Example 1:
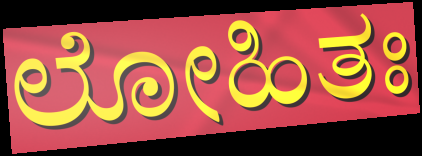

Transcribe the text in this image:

ಲೋಹಿತಃ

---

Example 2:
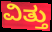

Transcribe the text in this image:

ವಿತ್ತು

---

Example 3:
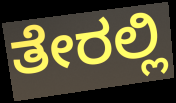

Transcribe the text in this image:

ತೇರಲ್ಲಿ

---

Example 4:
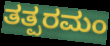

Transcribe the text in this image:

ತತ್ಪರಮಂ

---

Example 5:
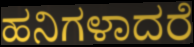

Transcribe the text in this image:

ಹನಿಗಳಾದರೆ